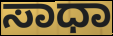
ಸಾಧಾ